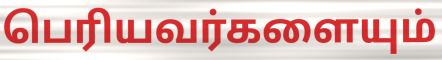
பெரியவர்களையும்